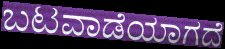
ಬಟವಾಡೆಯಾಗದೆ